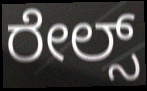
ರೇಲ್ಸ್